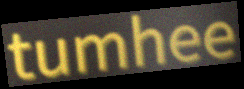
tumhee